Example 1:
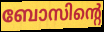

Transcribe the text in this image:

ബോസിന്റെ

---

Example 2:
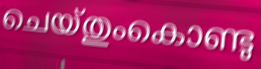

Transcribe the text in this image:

ചെയ്തുംകൊണ്ടു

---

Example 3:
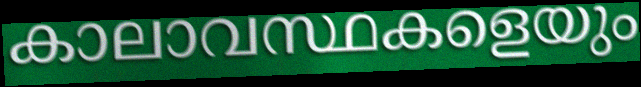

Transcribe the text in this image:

കാലാവസ്ഥകളെയും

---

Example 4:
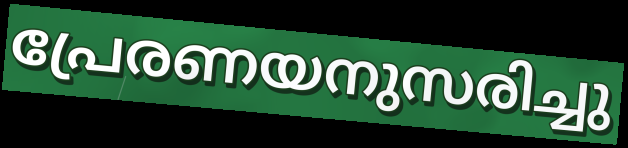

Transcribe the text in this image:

പ്രേരണയനുസരിച്ചു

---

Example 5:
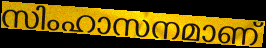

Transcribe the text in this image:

സിംഹാസനമാണ്